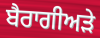
ਬੈਰਾਗੀਅੜੇ